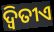
ଦ୍ୱିତୀଏ